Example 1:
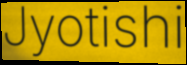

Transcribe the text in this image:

Jyotishi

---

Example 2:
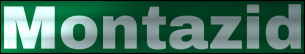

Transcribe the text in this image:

Montazid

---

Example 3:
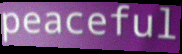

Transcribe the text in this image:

peaceful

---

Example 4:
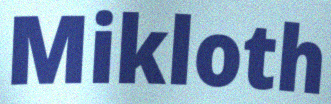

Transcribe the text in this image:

Mikloth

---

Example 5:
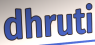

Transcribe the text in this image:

dhruti